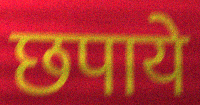
छपाये